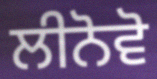
ਲੀਨੋਵੋ